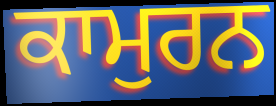
ਕਾਮੁਰਨ